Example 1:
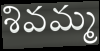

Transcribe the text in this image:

శివమ్మ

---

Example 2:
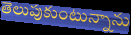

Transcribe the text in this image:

తెలుపుకుంటున్నాను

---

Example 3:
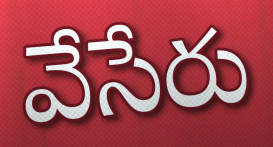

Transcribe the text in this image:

వేసేరు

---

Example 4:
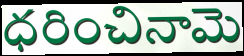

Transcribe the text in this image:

ధరించినామె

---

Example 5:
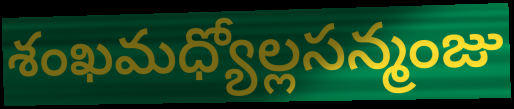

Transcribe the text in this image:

శంఖమధ్యోల్లసన్మంజు